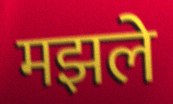
मझले